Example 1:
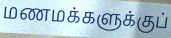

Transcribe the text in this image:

மணமக்களுக்குப்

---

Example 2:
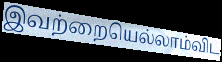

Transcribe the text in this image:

இவற்றையெல்லாம்விட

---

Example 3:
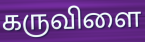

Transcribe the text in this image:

கருவிளை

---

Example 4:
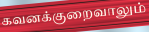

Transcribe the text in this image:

கவனக்குறைவாலும்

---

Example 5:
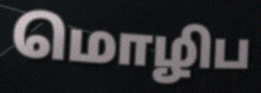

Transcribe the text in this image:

மொழிப